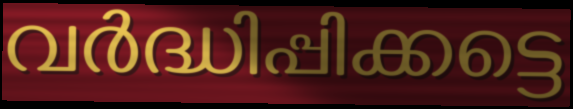
വർദ്ധിപ്പിക്കട്ടെ